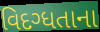
વિદગ્ધતાના